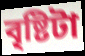
বৃষ্টিটা